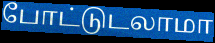
போட்டுடலாமா